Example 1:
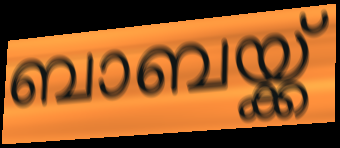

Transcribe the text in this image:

ബാബയ്ക്ക്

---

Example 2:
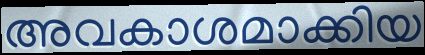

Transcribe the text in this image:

അവകാശമാക്കിയ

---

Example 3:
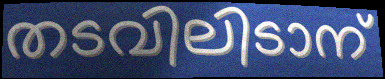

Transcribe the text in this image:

തടവിലിടാന്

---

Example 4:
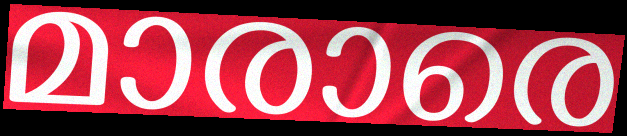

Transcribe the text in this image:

മാരാരെ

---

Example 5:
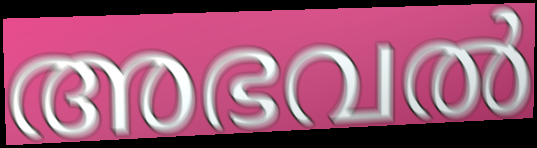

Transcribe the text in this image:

അഭവൽ